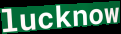
lucknow